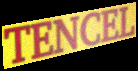
TENCEL